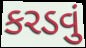
કરડવું